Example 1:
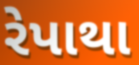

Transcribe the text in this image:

રેપાથા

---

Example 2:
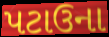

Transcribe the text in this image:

પટાઉના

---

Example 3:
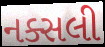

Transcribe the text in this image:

નક્સલી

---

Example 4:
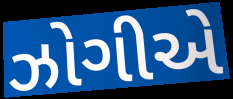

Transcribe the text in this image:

ઝોગીએ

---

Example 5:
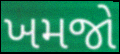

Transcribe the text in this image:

ખમજો